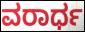
ವರಾರ್ಧ